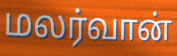
மலர்வான்